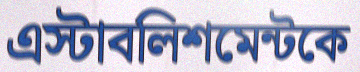
এস্টাবলিশমেন্টকে